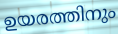
ഉയരത്തിനും